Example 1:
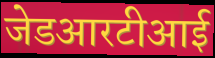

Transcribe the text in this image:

जेडआरटीआई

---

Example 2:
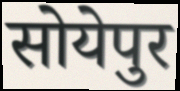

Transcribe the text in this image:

सोयेपुर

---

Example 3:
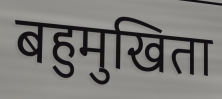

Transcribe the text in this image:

बहुमुखिता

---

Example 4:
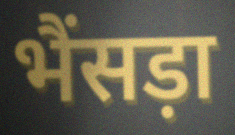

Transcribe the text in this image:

भैंसड़ा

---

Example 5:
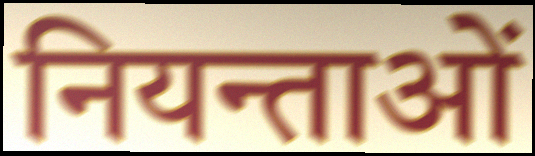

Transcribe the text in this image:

नियन्ताओं